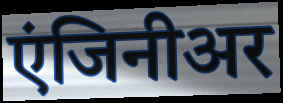
एंजिनीअर